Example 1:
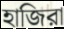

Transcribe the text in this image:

হাজিরা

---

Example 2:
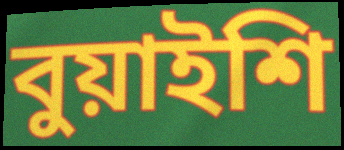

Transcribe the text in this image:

বুয়াইশি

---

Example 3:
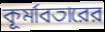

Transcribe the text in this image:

কূর্মাবতারের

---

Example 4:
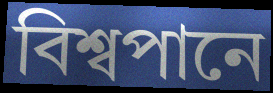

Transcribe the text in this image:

বিশ্বপানে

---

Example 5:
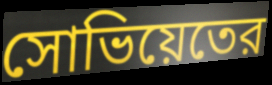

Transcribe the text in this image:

সোভিয়েতের